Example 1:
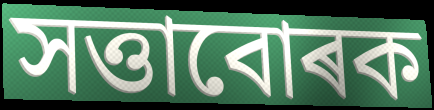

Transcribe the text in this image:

সত্তাবোৰক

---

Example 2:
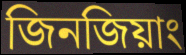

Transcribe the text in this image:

জিনজিয়াং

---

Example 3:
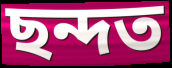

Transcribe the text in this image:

ছন্দত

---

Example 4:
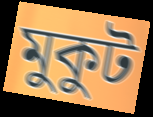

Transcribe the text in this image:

মুকুট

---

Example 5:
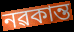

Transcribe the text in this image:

নৱকান্ত